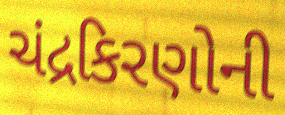
ચંદ્રકિરણોની